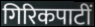
गिरिकपाटीं